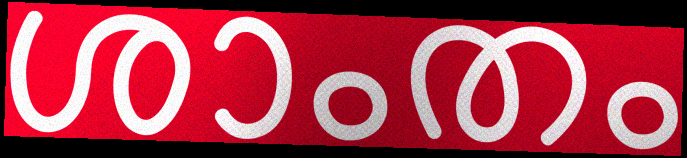
ശാംതം